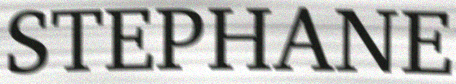
STEPHANE